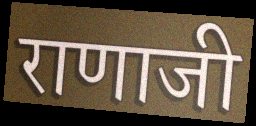
राणाजी